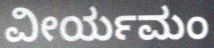
ವೀರ್ಯಮಂ